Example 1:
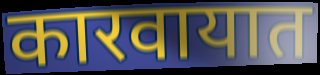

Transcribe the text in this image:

कारवायात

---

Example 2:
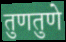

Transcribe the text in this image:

तुणतुणे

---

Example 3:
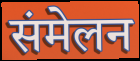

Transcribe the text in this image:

संमेलन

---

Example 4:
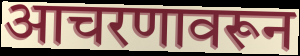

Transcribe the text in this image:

आचरणावरून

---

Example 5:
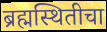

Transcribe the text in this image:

ब्रह्मस्थितीचा